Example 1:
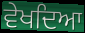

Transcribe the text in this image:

ਵੇਖਦਿਆ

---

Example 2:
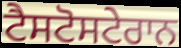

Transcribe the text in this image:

ਟੈਸਟੋਸਟੇਰਾਨ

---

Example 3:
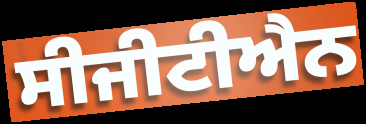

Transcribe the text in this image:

ਸੀਜੀਟੀਐਨ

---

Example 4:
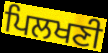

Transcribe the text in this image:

ਪਿਲਖਣੀ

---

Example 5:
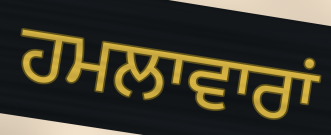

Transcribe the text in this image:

ਹਮਲਾਵਾਰਾਂ